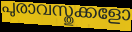
പുരാവസ്തുക്കളോ